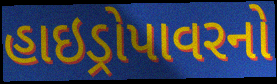
હાઇડ્રોપાવરનો